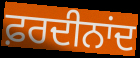
ਫ਼ਰਦੀਨਾਂਦ